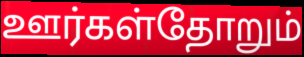
ஊர்கள்தோறும்